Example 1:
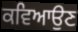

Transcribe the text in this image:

ਕਵਿਆਉਣ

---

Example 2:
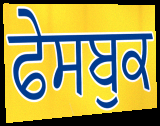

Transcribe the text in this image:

ਫੇਸਬੁਕ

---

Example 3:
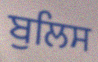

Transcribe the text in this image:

ਬੁਲਿਸ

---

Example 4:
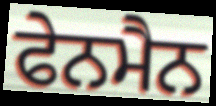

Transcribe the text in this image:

ਫੇਨਮੈਨ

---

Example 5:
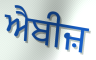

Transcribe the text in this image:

ਐਬੀਜ਼